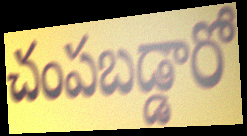
చంపబడ్డారో